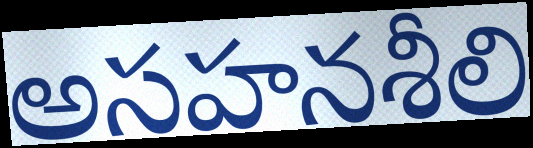
అసహనశీలి